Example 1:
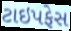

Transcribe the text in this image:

ટાઇપફેસ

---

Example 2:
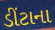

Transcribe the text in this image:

ડીંટાના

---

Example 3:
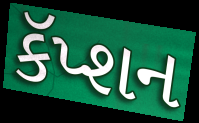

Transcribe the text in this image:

કૅપ્શન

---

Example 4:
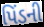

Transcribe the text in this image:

પિંડની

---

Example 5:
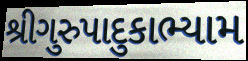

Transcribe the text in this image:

શ્રીગુરુપાદુકાભ્યામ